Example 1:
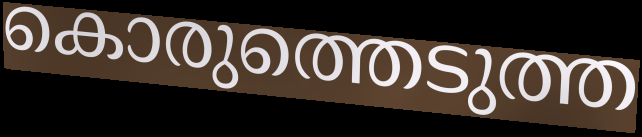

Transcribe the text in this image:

കൊരുത്തെടുത്ത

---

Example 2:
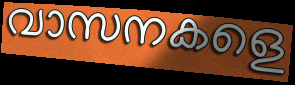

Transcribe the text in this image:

വാസനകളെ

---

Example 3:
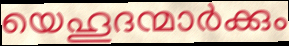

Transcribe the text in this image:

യെഹൂദന്മാർക്കും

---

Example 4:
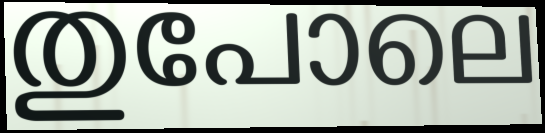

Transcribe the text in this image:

തുപോലെ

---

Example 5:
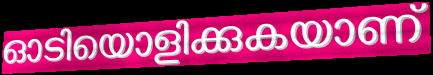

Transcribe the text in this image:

ഓടിയൊളിക്കുകയാണ്